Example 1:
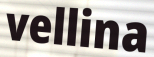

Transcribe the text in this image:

vellina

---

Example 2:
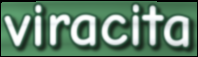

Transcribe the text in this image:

viracita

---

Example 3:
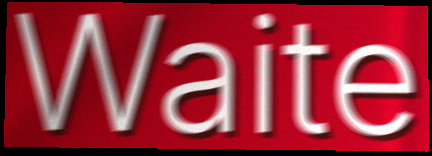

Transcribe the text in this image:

Waite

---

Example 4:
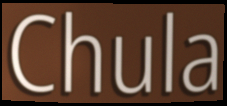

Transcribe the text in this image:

Chula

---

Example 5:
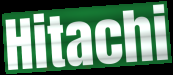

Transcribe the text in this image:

Hitachi